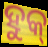
ହୁକ୍